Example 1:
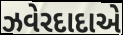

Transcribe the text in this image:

ઝવેરદાદાએ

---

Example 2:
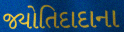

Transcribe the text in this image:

જ્યોતિદાદાના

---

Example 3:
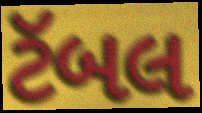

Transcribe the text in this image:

ટૅબલ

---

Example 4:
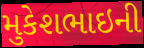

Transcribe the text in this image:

મુકેશભાઇની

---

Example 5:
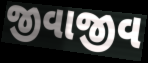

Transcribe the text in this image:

જીવાજીવ